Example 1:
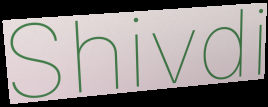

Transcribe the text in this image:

Shivdi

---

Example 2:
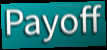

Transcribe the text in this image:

Payoff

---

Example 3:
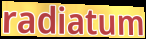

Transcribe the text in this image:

radiatum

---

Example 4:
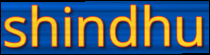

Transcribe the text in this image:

shindhu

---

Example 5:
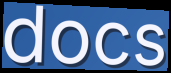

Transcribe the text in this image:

docs